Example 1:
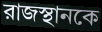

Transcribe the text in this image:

রাজস্থানকে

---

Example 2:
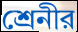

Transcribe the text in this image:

শ্রেনীর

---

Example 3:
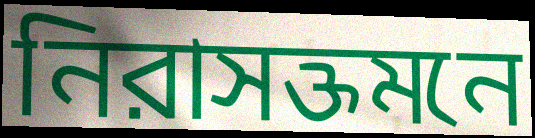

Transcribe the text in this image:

নিরাসক্তমনে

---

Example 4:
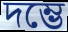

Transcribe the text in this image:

দম্ভে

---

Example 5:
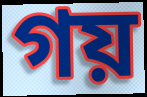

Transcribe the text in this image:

গয়